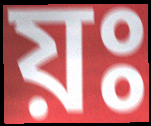
য়ঃ